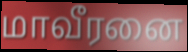
மாவீரனை